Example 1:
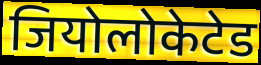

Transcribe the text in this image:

जियोलोकेटेड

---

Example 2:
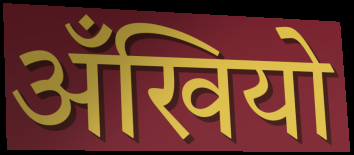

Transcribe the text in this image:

अँखियो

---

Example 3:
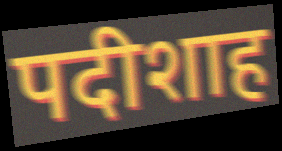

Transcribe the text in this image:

पदीशाह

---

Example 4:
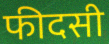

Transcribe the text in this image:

फीदसी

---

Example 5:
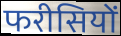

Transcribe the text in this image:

फरीसियों